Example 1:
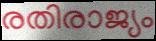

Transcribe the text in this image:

രതിരാജ്യം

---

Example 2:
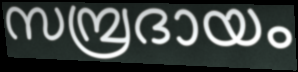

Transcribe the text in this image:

സമ്പ്രദായം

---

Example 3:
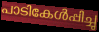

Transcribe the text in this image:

പാടികേൾപ്പിച്ചു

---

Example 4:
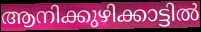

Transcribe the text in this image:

ആനിക്കുഴിക്കാട്ടിൽ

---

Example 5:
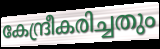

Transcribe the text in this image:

കേന്ദ്രീകരിച്ചതും